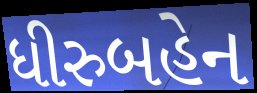
ધીરુબહેન